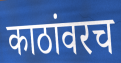
काठांवरच